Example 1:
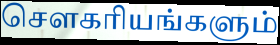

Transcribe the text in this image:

சௌகரியங்களும்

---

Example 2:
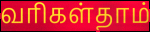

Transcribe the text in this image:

வரிகள்தாம்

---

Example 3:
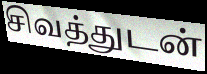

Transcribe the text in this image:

சிவத்துடன்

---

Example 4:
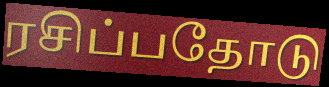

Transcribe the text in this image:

ரசிப்பதோடு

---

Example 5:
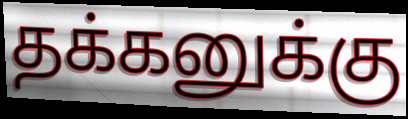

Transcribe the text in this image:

தக்கனுக்கு